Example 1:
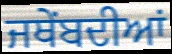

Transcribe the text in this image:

ਜਥੇਂਬਦੀਆਂ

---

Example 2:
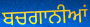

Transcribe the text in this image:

ਬਚਗਾਨੀਆਂ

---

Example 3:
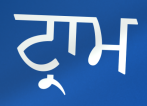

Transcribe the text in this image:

ਟ੍ਰਾਮ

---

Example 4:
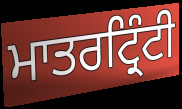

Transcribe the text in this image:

ਮਾਤਰਟ੍ਰਿੰਟੀ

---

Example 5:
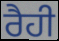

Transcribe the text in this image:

ਰੈਹੀ